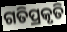
ଗତିପ୍ରକୃତି